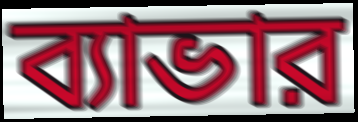
ব্যাভার